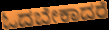
ಓದಬೇಕಾದರೆ